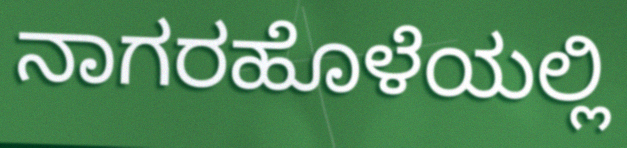
ನಾಗರಹೊಳೆಯಲ್ಲಿ